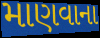
માણવાના